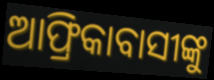
ଆଫ୍ରିକାବାସୀଙ୍କୁ